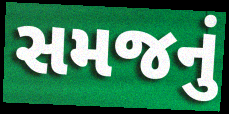
સમજનું